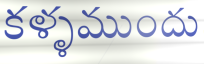
కళ్ళముందు